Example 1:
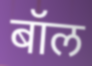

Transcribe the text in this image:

बॉल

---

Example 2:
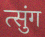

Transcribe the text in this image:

त्सुंग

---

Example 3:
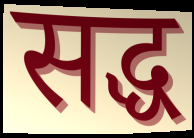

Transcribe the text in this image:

सद्ध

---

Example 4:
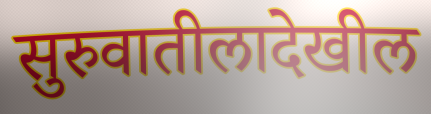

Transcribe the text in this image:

सुरुवातीलादेखील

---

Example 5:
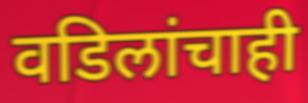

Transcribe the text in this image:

वडिलांचाही